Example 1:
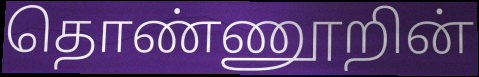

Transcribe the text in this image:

தொண்ணூறின்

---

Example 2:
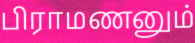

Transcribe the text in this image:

பிராமணனும்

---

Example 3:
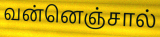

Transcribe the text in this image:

வன்னெஞ்சால்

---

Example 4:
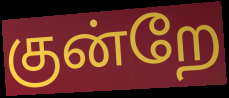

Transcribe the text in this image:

குன்றே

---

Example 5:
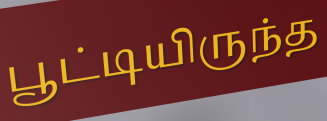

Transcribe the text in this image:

பூட்டியிருந்த